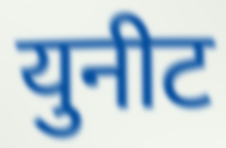
युनीट